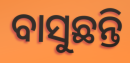
ବାସୁଛନ୍ତି